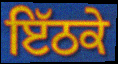
ਇੱਠਕੇ